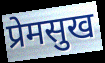
प्रेमसुख